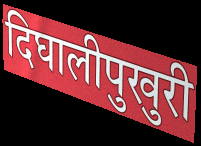
दिघालीपुखुरी